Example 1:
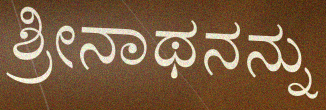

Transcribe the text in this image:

ಶ್ರೀನಾಥನನ್ನು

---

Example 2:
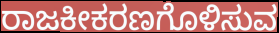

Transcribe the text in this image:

ರಾಜಕೀಕರಣಗೊಳಿಸುವ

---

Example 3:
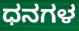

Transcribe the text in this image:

ಧನಗಳ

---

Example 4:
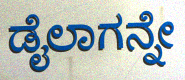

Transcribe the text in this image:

ಡೈಲಾಗನ್ನೇ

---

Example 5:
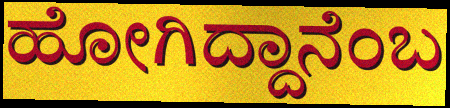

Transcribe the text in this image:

ಹೋಗಿದ್ದಾನೆಂಬ